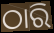
ଠାରି